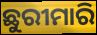
ଛୁରୀମାରି